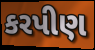
કરપીણ